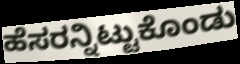
ಹೆಸರನ್ನಿಟ್ಟುಕೊಂಡು